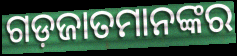
ଗଡ଼ଜାତମାନଙ୍କର